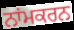
ਨਾਂਮਕਰਨ